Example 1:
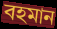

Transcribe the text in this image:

বহমান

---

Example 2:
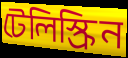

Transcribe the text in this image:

টেলিস্ক্রিন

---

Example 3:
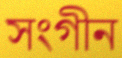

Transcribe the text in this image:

সংগীন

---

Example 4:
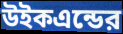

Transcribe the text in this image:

উইকএন্ডের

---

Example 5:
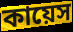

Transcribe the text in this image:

কায়েস